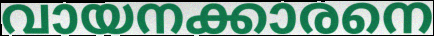
വായനക്കാരനെ